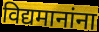
विद्यमानांना